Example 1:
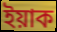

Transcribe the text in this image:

ইয়াক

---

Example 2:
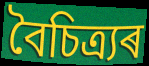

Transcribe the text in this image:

বৈচিত্ৰ্যৰ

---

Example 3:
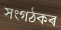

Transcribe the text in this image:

সংগঠকৰ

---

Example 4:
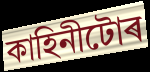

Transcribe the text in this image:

কাহিনীটোৰ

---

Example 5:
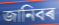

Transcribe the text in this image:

জানিবৰ